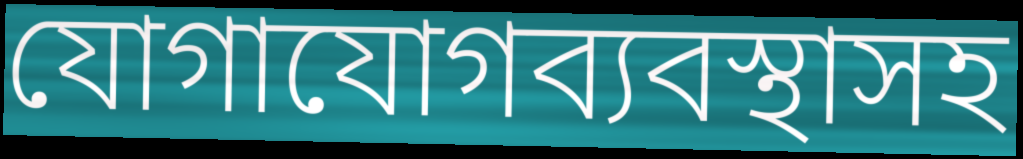
যোগাযোগব্যবস্থাসহ